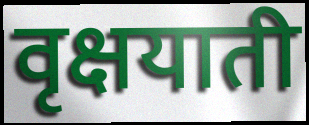
वृक्षयाती